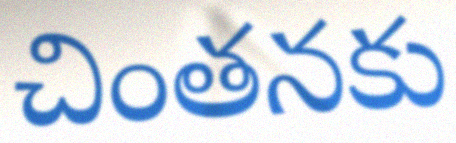
చింతనకు